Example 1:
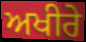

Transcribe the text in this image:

ਅਖੀਰੇ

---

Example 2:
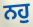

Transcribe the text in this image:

ਨਹੁ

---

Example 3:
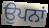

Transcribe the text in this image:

ਉਪਨਾਂ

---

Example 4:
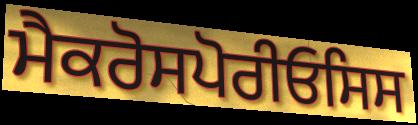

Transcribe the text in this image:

ਮੈਕਰੋਸਪੋਰੀਓਸਿਸ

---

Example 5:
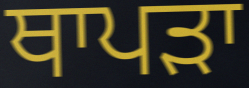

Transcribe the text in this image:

ਥਾਪੜਾ